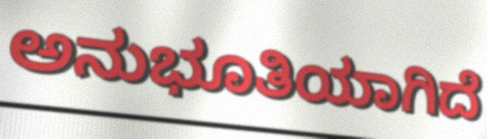
ಅನುಭೂತಿಯಾಗಿದೆ